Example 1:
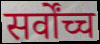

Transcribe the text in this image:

सर्वोंच्च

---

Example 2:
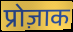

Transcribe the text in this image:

प्रोज़ाक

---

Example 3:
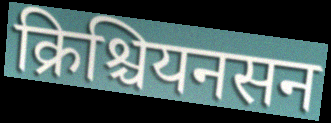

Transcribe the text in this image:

क्रिश्चियनसन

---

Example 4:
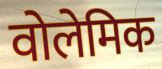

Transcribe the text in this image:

वोलेमिक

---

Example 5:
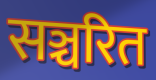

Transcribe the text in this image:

सञ्चरित